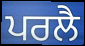
ਪਰਲੈ